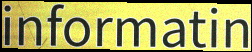
informatin